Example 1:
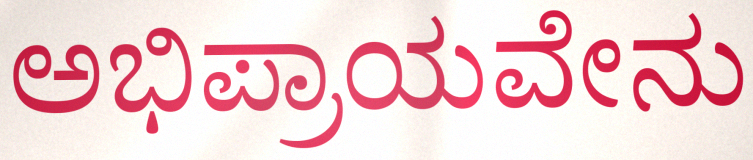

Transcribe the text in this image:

ಅಭಿಪ್ರಾಯವೇನು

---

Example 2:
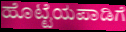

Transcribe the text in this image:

ಹೊಟ್ಟೆಯಪಾಡಿಗೆ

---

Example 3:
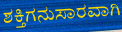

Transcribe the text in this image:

ಶಕ್ತಿಗನುಸಾರವಾಗಿ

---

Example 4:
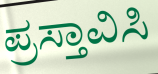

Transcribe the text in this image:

ಪ್ರಸ್ತಾವಿಸಿ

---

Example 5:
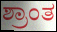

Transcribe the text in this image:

ಶ್ರಾಂತ